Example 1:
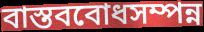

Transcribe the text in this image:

বাস্তববোধসম্পন্ন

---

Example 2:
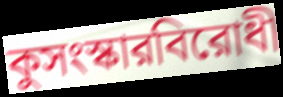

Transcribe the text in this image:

কুসংস্কারবিরোধী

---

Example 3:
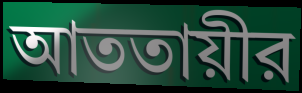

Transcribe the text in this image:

আততায়ীর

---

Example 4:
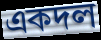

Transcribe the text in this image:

একদল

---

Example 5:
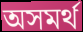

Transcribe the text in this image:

অসমর্থ